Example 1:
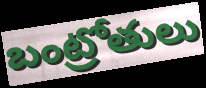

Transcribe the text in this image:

బంట్రోతులు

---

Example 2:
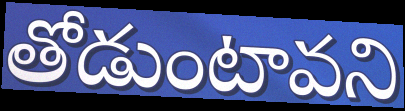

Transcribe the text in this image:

తోడుంటావని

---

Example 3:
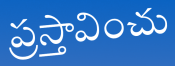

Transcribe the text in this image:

ప్రస్తావించు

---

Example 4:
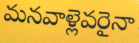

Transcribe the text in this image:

మనవాళ్లెవరైనా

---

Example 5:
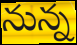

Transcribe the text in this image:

నున్న